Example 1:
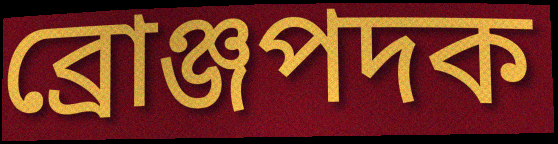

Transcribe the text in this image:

ব্রোঞ্জপদক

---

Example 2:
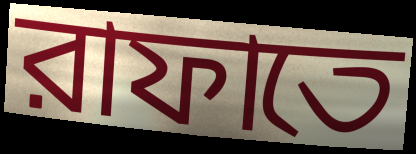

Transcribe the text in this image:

রাফাতে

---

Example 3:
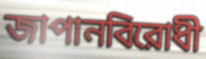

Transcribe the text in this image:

জাপানবিরোধী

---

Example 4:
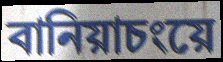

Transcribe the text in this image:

বানিয়াচংয়ে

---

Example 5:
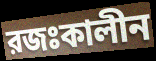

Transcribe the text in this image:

রজঃকালীন